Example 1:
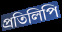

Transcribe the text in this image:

প্ৰতিলিপি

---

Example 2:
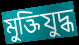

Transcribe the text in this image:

মুক্তিযুদ্ধ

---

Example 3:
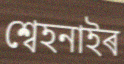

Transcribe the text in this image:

শ্বেহনাইৰ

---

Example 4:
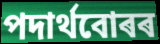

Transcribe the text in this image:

পদাৰ্থবোৰৰ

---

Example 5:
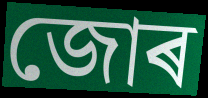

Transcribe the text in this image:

জোৰ